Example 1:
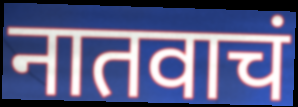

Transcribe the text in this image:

नातवाचं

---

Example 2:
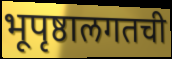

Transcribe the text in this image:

भूपृष्ठालगतची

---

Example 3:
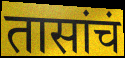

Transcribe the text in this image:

तासांचं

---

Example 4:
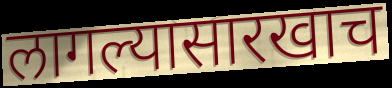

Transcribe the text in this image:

लागल्यासारखाच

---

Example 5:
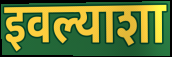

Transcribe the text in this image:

इवल्याशा